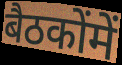
बैठकोंमें